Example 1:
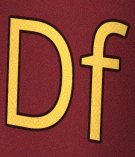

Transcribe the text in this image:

Df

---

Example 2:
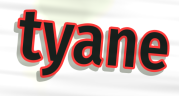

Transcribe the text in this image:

tyane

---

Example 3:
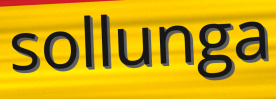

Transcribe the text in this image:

sollunga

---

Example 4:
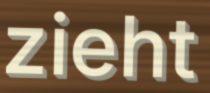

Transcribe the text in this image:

zieht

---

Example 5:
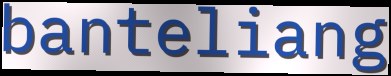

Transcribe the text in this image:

banteliang